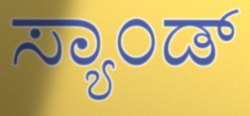
ಸ್ಯಾಂಡ್